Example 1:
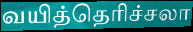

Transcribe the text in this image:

வயித்தெரிச்சலா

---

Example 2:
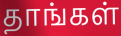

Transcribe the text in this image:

தாங்கள்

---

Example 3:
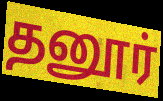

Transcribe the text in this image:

தனூர்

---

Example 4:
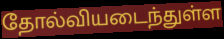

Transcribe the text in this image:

தோல்வியடைந்துள்ள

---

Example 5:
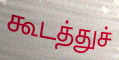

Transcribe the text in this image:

கூடத்துச்